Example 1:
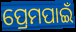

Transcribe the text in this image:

ପ୍ରେମପାଇଁ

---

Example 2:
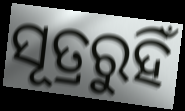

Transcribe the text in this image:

ସୂତ୍ରରୁହିଁ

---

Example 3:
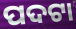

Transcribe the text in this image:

ପଦଟା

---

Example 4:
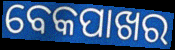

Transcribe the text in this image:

ବେକପାଖର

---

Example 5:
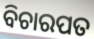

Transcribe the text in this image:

ବିଚାରପତ